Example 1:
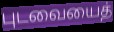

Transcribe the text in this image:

புடவையைத்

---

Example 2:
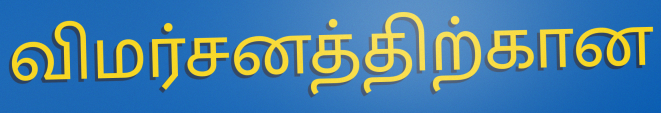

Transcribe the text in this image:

விமர்சனத்திற்கான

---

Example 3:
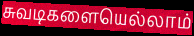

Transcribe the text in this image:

சுவடிகளையெல்லாம்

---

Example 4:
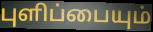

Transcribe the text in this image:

புளிப்பையும்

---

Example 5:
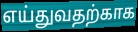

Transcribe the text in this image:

எய்துவதற்காக